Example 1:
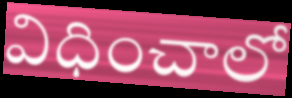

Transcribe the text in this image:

విధించాలో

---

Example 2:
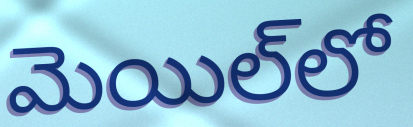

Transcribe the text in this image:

మెయిల్‌లో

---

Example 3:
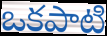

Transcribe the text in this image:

ఒకపాటి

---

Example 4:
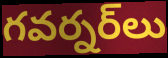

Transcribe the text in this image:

గవర్నర్‌లు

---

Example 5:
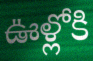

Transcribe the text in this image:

ఊళ్లోకి